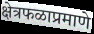
क्षेत्रफळाप्रमाणे